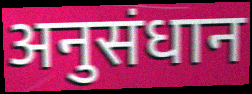
अनुसंधान